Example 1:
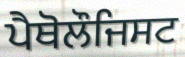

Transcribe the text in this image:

ਪੈਥੋਲੌਜਿਸਟ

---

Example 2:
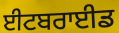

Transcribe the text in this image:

ਈਟਬਰਾਈਡ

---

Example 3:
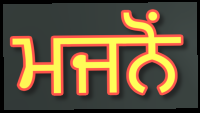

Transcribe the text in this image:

ਮਜਨੋਂ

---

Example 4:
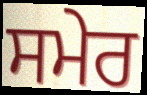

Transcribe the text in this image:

ਸਮੇਰ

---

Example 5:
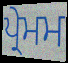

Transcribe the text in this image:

ਪ੍ਰੇਮਮ